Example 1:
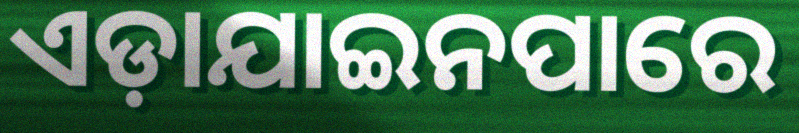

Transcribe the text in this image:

ଏଡ଼ାଯାଇନପାରେ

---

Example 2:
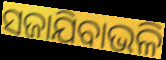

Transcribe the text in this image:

ସଜାଯିବାଭଳି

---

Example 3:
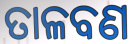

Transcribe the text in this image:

ତାଳବଣ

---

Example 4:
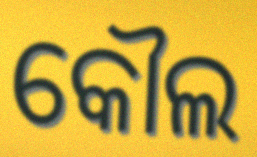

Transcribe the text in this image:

କୌଲ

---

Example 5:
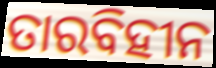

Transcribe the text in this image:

ତାରବିହୀନ